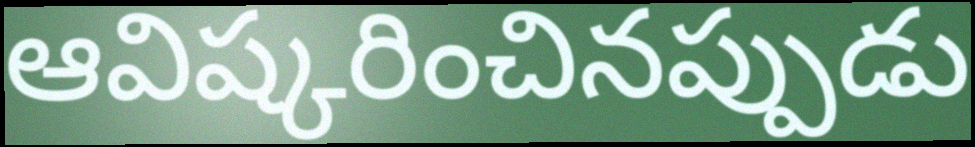
ఆవిష్కరించినప్పుడు